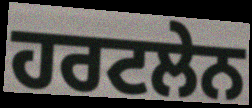
ਹਰਟਲੇਨ